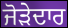
ਜੋੜੇਦਾਰ